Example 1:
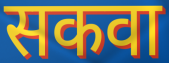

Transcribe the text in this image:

सकवा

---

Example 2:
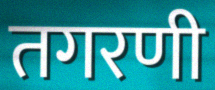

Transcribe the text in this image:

तगरणी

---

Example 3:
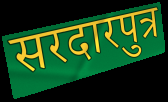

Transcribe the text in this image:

सरदारपुत्र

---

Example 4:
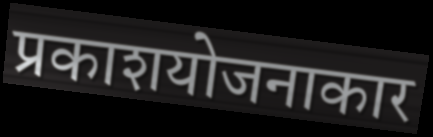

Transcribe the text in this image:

प्रकाशयोजनाकार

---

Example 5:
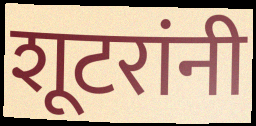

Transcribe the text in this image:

शूटरांनी